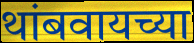
थांबवायच्या